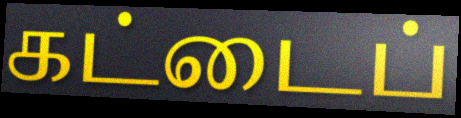
கட்டைப்